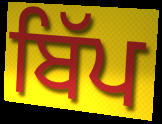
ਬਿੱਪ